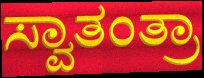
ಸ್ವಾತಂತ್ರಾ